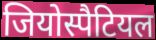
जियोस्पैटियल